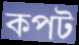
কপট